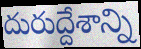
దురుద్దేశాన్ని